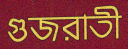
গুজরাতী